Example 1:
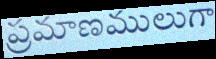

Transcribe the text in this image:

ప్రమాణములుగా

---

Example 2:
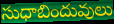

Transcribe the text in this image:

సుధాబిందువులు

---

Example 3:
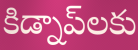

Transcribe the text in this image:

కిడ్నాప్‌లకు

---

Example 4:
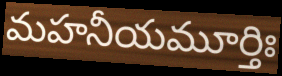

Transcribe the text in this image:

మహనీయమూర్తిః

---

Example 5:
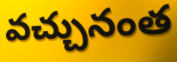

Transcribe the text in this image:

వచ్చునంత